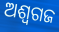
ଅଶ୍ୱଗଜ